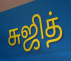
சுஜித்